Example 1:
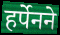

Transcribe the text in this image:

हर्पेनने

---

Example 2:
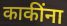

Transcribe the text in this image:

काकींना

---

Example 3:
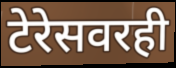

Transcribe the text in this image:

टेरेसवरही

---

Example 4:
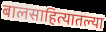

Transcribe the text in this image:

बालसाहित्यातल्या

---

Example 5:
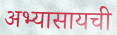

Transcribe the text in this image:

अभ्यासायची